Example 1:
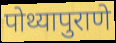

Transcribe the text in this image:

पोथ्यापुराणे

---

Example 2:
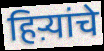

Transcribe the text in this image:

हिऱ्‍यांचे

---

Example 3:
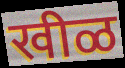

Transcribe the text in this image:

खीळ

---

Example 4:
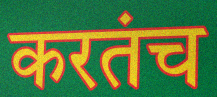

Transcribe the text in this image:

करतंच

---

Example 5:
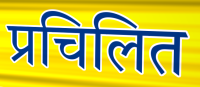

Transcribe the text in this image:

प्रचिलित